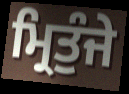
ਮ੍ਰਿਤੁੰਜੇ